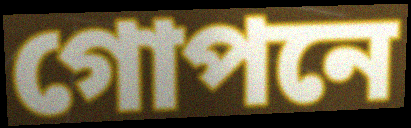
গোপনে